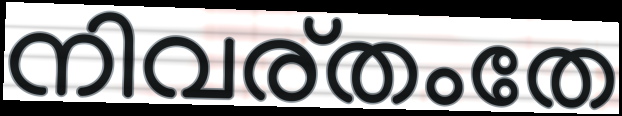
നിവര്തംതേ